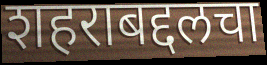
शहराबद्दलचा